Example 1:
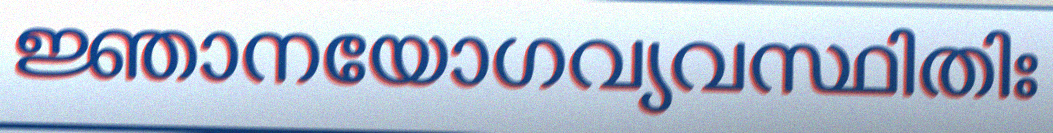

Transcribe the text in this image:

ജ്ഞാനയോഗവ്യവസ്ഥിതിഃ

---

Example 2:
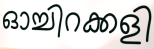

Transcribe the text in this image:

ഓച്ചിറക്കളി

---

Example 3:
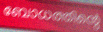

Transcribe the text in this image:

ബോധത്തിന്റെ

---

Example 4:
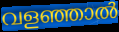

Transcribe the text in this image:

വളഞ്ഞാൽ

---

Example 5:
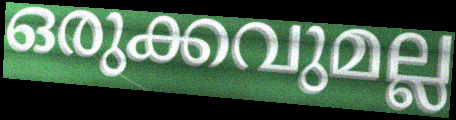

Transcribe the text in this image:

ഒരുക്കവുമല്ല